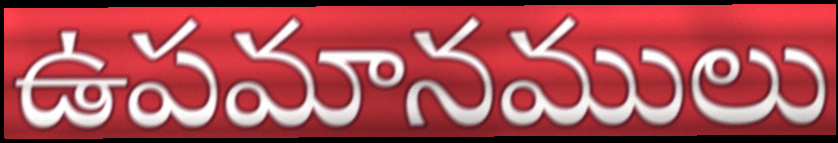
ఉపమానములు